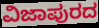
ವಿಜಾಪುರದ